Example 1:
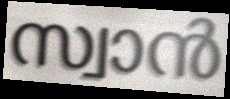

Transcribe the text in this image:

സ്വാൻ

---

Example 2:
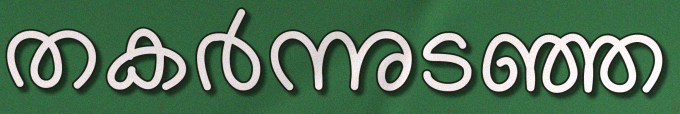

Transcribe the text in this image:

തകർന്നുടഞ്ഞ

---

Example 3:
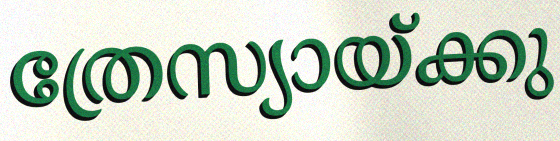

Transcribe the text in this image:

ത്രേസ്യായ്ക്കു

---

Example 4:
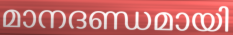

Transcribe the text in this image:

മാനദണ്ഡമായി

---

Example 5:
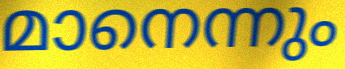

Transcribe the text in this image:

മാനെന്നും